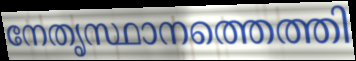
നേതൃസ്ഥാനത്തെത്തി